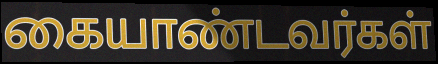
கையாண்டவர்கள்